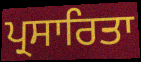
ਪ੍ਰਸਾਰਿਤਾ